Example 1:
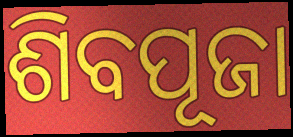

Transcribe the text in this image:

ଶିବପୂଜା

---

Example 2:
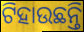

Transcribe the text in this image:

ଟିହାଉଛନ୍ତି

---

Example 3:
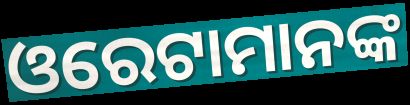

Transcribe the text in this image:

ଓରେଟାମାନଙ୍କ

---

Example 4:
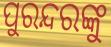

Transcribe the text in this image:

ପୁରନ୍ଦରଙ୍କୁ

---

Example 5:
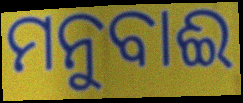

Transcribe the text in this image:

ମନୁବାଈ